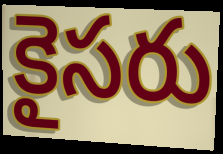
కైసరు